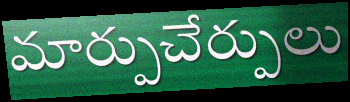
మార్పుచేర్పులు